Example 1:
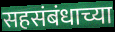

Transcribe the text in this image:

सहसंबंधाच्या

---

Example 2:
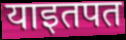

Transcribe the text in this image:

याइतपत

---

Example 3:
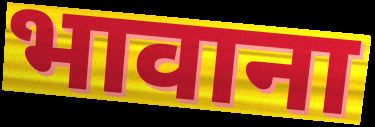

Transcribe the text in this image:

भावाना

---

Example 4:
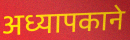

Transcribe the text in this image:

अध्यापकाने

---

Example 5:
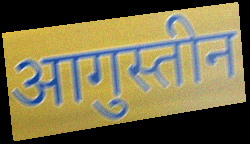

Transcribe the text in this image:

आगुस्तीन